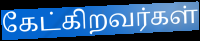
கேட்கிறவர்கள்